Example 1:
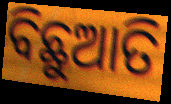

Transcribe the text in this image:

ବିଛୁଆତି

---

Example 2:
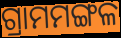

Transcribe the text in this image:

ଗ୍ରାମମଙ୍ଗଳ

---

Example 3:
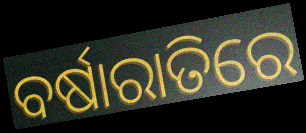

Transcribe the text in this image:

ବର୍ଷାରାତିରେ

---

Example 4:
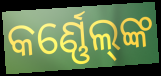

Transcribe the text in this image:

କର୍ଣ୍ଣେଲ୍‌ଙ୍କ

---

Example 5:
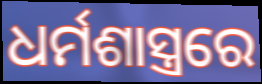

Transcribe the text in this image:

ଧର୍ମଶାସ୍ତ୍ରରେ